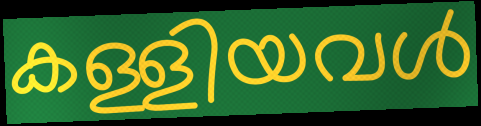
കള്ളിയവൾ